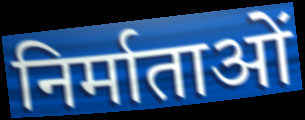
निर्माताओं